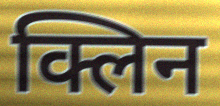
क्लिन